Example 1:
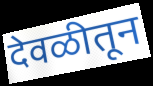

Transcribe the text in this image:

देवळीतून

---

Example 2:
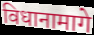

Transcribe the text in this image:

विधानामागे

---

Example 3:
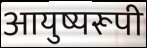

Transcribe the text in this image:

आयुष्यरूपी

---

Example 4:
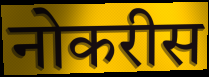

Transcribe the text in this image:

नोकरीस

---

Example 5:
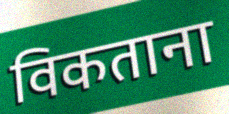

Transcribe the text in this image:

विकताना